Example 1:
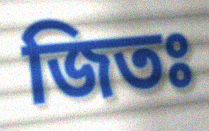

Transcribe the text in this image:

জিতঃ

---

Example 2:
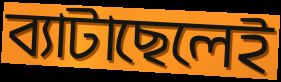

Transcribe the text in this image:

ব্যাটাছেলেই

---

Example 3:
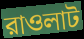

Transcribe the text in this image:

রাওলাট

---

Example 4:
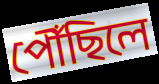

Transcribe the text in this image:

পৌঁছিলে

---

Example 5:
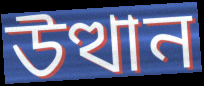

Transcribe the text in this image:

উত্থান